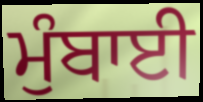
ਮੁੰਬਾਈ